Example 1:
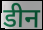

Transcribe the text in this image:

डीन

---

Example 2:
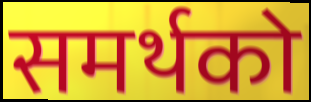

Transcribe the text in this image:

समर्थको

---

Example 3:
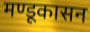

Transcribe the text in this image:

मण्डूकासन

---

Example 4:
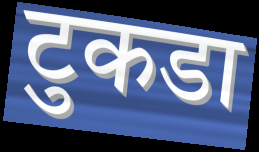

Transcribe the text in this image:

टुकडा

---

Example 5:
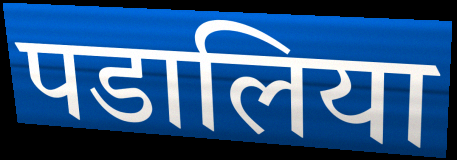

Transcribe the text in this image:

पडालिया